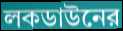
লকডাউনের